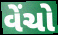
વેંચો